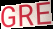
GRE